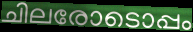
ചിലരോടൊപ്പം